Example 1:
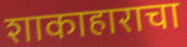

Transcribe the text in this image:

शाकाहाराचा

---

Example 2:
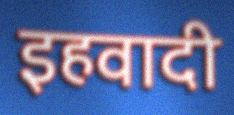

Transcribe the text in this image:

इहवादी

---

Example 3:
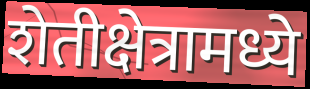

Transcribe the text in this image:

शेतीक्षेत्रामध्ये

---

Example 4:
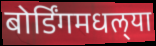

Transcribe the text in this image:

बोर्डिंगमधल्या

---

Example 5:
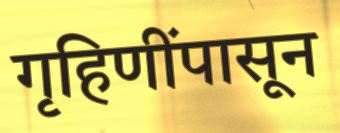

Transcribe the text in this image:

गृहिणींपासून